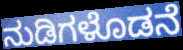
ನುಡಿಗಳೊಡನೆ